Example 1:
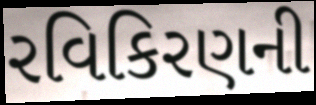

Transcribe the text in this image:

રવિકિરણની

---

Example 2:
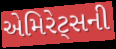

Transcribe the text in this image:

એમિરેટ્સની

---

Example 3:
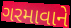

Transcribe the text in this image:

ગરમાવાને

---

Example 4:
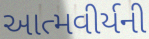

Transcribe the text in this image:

આત્મવીર્યની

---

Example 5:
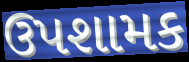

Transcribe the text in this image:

ઉપશામક